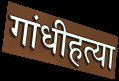
गांधीहत्या